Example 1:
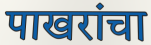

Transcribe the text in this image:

पाखरांचा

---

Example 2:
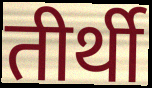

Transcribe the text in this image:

तीर्थी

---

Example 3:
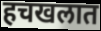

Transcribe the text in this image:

हचखलात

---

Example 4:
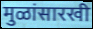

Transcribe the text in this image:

मुळांसारखी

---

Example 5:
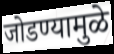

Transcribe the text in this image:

जोडण्यामुळे